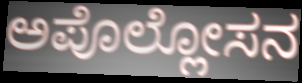
ಅಪೊಲ್ಲೋಸನ